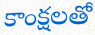
కాంక్షలతో